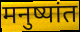
मनुष्यांत